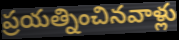
ప్రయత్నించినవాళ్లు